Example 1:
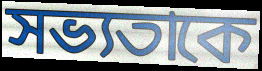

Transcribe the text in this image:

সভ্যতাকে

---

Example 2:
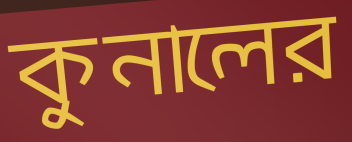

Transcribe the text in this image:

কুনালের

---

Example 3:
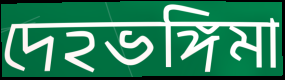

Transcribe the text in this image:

দেহভঙ্গিমা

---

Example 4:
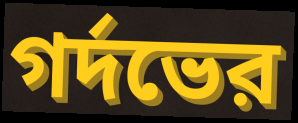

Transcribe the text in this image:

গর্দভের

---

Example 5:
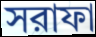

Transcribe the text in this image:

সরাফা